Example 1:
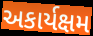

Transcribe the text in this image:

અકાર્યક્ષમ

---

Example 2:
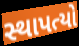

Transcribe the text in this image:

સ્થાપત્યો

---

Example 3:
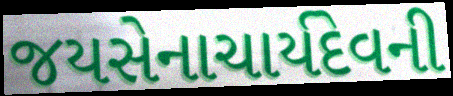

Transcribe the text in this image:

જયસેનાચાર્યદેવની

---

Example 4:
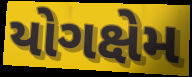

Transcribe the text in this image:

યોગક્ષેમ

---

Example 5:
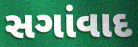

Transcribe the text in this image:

સગાંવાદ